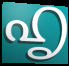
ഹൃ